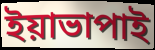
ইয়াভাপাই